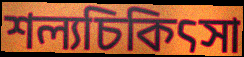
শল্যচিকিৎসা